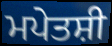
ਮਪੇਤਸ਼ੀ